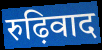
रुढ़िवाद